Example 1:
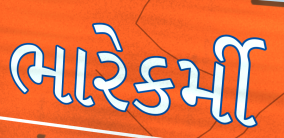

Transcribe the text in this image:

ભારેકર્મી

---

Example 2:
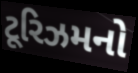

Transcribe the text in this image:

ટૂરિઝમનો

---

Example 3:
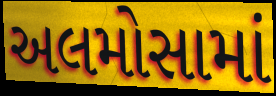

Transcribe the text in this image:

અલમોસામાં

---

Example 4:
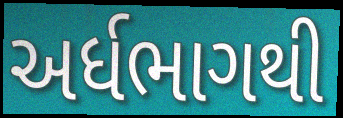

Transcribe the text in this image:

અર્ધભાગથી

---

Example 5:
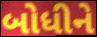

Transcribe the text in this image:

બોધીને